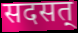
सदसत्